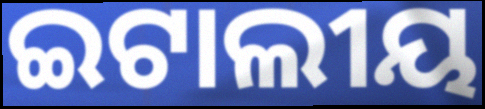
ଇଟାଲୀୟ